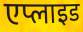
एप्लाइड